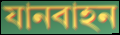
যানবাহন